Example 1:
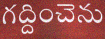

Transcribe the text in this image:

గద్దించెను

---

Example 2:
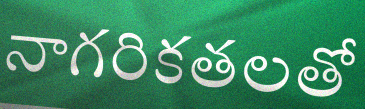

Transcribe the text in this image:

నాగరికతలతో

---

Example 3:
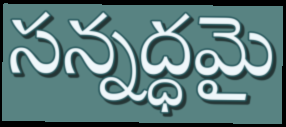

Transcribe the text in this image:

సన్నద్ధమై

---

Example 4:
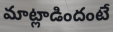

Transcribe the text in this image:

మాట్లాడిందంటే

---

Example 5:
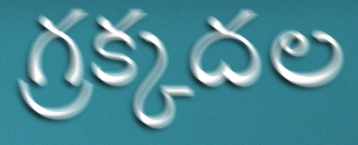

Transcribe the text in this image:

గ్రక్కదల